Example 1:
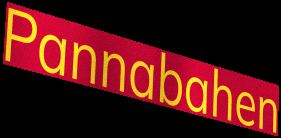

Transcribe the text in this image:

Pannabahen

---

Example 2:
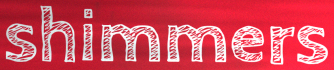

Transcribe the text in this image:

shimmers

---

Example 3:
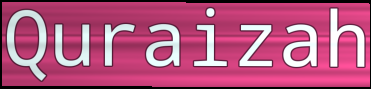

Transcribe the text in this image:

Quraizah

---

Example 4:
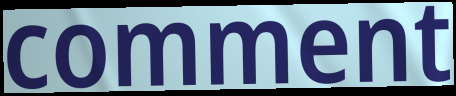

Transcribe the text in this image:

comment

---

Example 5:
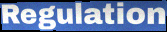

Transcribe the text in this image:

Regulation